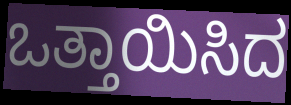
ಒತ್ತಾಯಿಸಿದ